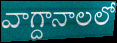
వాగ్దానాలలో